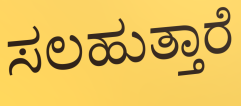
ಸಲಹುತ್ತಾರೆ